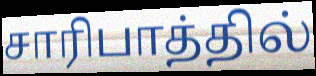
சாரிபாத்தில்